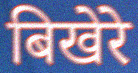
बिखेरे